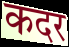
कदर